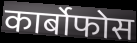
कार्बोफोस